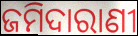
ଜମିଦାରାଣୀ